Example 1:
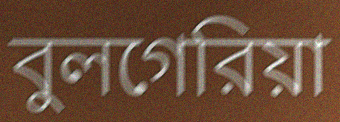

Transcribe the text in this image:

বুলগেরিয়া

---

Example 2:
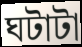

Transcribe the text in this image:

ঘটাটা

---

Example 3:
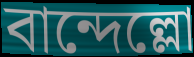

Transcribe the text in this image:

বান্দেল্লো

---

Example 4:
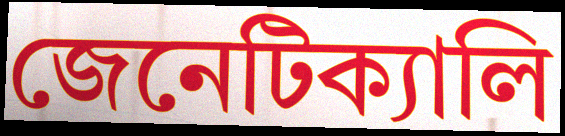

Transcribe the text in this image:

জেনেটিক্যালি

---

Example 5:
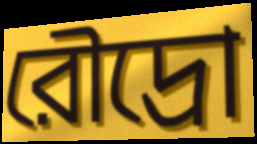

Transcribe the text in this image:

রৌদ্রো